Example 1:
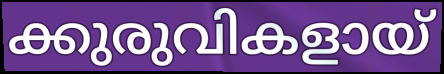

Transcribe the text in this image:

ക്കുരുവികളായ്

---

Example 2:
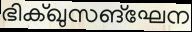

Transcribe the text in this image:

ഭിക്ഖുസങ്ഘേന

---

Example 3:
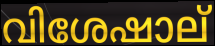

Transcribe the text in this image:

വിശേഷാല്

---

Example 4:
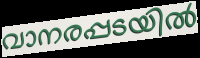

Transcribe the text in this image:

വാനരപ്പടയിൽ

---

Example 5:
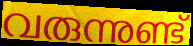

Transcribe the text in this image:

വരുന്നുണ്ട്